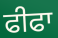
ਫੀਫਾ